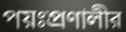
পয়ঃপ্রণালীর